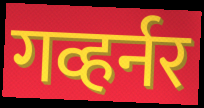
गव्हर्नर